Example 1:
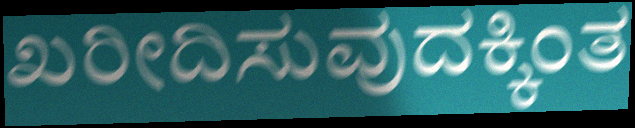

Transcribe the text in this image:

ಖರೀದಿಸುವುದಕ್ಕಿಂತ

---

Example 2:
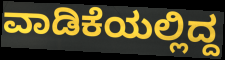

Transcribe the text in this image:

ವಾಡಿಕೆಯಲ್ಲಿದ್ದ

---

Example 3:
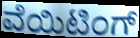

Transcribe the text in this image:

ವೆಯಿಟಿಂಗ್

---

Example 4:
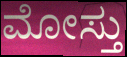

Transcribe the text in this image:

ಮೋಸ್ತು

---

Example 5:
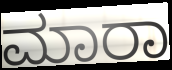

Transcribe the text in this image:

ಮಾರಾ